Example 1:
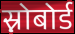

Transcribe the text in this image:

स्नोबोर्ड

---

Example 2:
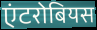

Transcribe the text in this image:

एंटरोबियस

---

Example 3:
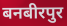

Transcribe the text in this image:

बनबीरपुर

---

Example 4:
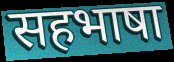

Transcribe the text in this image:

सहभाषा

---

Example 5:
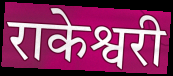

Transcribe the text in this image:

राकेश्वरी